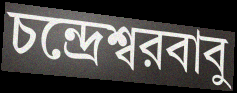
চন্দ্রেশ্বরবাবু